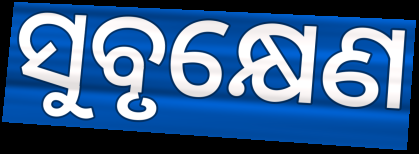
ସୁବୃକ୍ଷେଣ